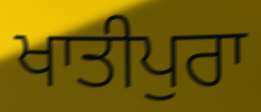
ਖਾਤੀਪੁਰਾ